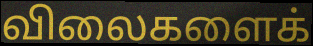
விலைகளைக்